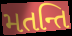
મતન્તિ